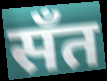
सँत